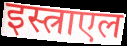
इस्त्राएल